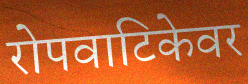
रोपवाटिकेवर